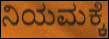
ನಿಯಮಕ್ಕೆ